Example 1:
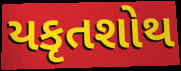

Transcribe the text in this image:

યકૃતશોથ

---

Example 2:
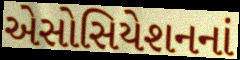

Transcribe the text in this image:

એસોસિયેશનનાં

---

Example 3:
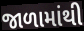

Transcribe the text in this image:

જાળામાંથી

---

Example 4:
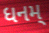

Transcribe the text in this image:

ધનમ્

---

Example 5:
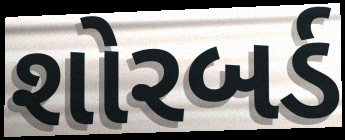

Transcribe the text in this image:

શોરબર્ડ